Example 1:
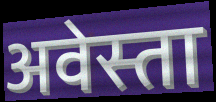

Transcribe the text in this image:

अवेस्ता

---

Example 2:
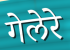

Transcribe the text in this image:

गेलेरे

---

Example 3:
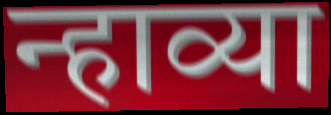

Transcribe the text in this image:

न्हाव्या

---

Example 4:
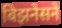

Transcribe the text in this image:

बिझनेसने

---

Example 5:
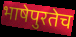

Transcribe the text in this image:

भाषेपुरतेच